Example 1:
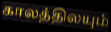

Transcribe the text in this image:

காலத்திலயும்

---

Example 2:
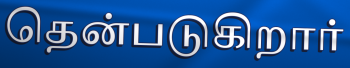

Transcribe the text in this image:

தென்படுகிறார்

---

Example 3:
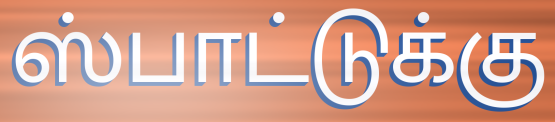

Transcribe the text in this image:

ஸ்பாட்டுக்கு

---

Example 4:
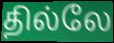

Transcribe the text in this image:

தில்லே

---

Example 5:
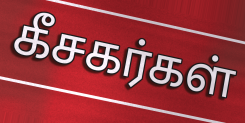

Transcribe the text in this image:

கீசகர்கள்